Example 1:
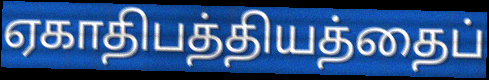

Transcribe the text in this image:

ஏகாதிபத்தியத்தைப்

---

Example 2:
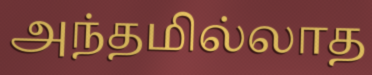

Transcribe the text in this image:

அந்தமில்லாத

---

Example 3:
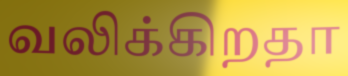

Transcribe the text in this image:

வலிக்கிறதா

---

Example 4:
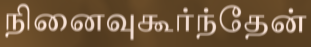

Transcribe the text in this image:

நினைவுகூர்ந்தேன்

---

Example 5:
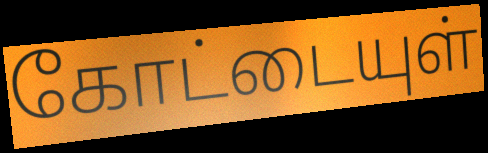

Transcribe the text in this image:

கோட்டையுள்